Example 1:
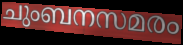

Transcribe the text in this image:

ചുംബനസമരം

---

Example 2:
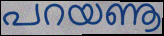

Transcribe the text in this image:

പറയണൂ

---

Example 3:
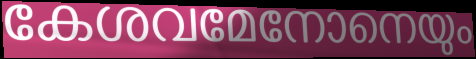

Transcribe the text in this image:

കേശവമേനോനെയും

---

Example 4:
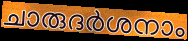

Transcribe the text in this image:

ചാരുദർശനാം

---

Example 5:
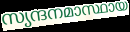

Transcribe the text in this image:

സ്യന്ദനമാസ്ഥായ